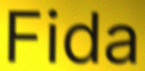
Fida